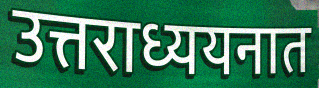
उत्तराध्ययनात